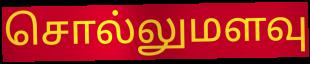
சொல்லுமளவு